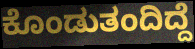
ಕೊಂಡುತಂದಿದ್ದೆ